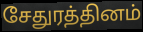
சேதுரத்தினம்